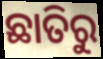
ଛାତିରୁ